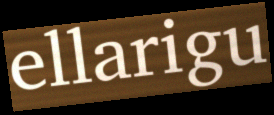
ellarigu